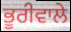
ਭੂਰੀਵਾਲੇ